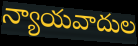
న్యాయవాదుల